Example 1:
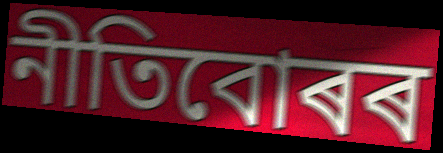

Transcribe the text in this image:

নীতিবোৰৰ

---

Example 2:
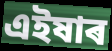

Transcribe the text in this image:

এইষাৰ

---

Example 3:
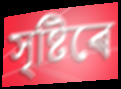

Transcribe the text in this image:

সৃষ্টিৰে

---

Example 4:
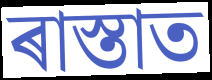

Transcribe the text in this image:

ৰাস্তাত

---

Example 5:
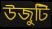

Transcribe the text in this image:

উজুটি